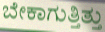
ಬೇಕಾಗುತ್ತಿತ್ತು